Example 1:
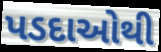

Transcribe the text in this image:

પડદાઓથી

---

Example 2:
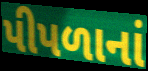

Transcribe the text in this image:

પીપળાનાં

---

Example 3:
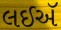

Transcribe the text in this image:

લઈઍ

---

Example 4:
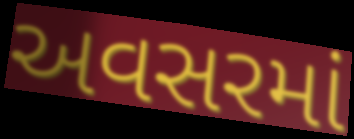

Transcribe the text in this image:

અવસરમાં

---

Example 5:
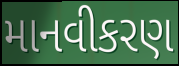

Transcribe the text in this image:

માનવીકરણ